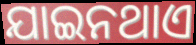
ଯାଇନଥାଏ